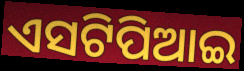
ଏସଟିପିଆଇ